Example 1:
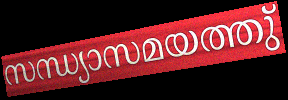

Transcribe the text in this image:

സന്ധ്യാസമയത്തു്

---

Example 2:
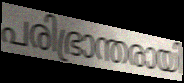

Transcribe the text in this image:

പരിഭ്രാന്തരായി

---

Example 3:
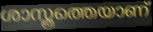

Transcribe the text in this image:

ശാസ്ത്രത്തെയാണ്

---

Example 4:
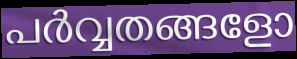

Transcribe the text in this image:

പർവ്വതങ്ങളോ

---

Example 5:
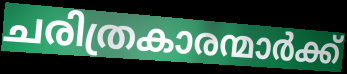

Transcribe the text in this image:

ചരിത്രകാരന്മാർക്ക്